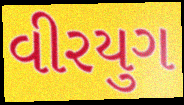
વીરયુગ